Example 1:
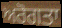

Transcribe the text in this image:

ਅਰੋਗਤਾ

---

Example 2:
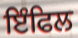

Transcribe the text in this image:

ਇੰਫਿਲ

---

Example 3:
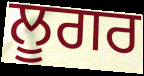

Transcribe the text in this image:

ਲੂਗਰ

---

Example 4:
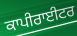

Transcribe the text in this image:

ਕਾਪੀਰਾਈਟਰ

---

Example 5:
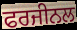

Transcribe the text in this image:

ਫਰਜੀਨਲ